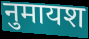
नुमायश